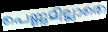
പെണ്ണുമില്ലാതെ